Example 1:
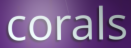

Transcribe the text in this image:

corals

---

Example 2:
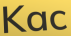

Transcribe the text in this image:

Kac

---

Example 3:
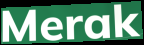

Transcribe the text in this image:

Merak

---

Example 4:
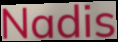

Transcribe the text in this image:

Nadis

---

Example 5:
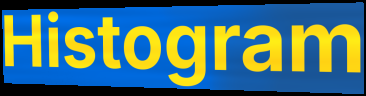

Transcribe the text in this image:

Histogram